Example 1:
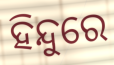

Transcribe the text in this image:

ହିନ୍ଦୁରେ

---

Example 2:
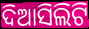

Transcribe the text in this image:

ଦିଆସିଲିଟି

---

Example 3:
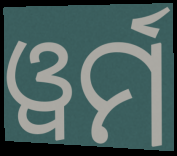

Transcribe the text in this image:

ୱର୍ମ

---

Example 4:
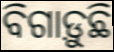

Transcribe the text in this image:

ବିଗାଡ଼ୁଛି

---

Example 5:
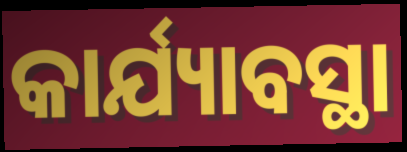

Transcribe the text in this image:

କାର୍ଯ୍ୟାବସ୍ଥା